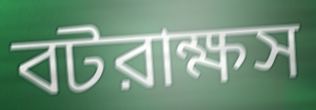
বটরাক্ষস